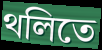
থলিতে